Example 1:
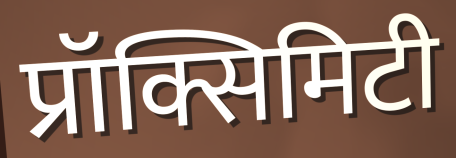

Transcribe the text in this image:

प्रॉक्सिमिटी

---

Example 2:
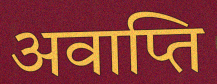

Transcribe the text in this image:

अवाप्ति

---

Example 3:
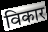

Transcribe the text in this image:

विकार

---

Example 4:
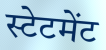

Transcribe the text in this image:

स्टेटमेंट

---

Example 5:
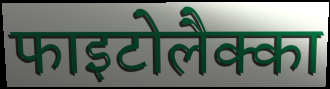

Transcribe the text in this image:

फाइटोलैक्का